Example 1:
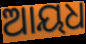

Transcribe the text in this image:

ଆୟଧ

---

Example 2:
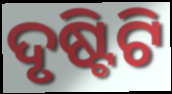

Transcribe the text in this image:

ଦୃଷ୍ଟିଟି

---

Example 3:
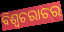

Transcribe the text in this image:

ବିଶ୍ଵଚରାଚର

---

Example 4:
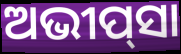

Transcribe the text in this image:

ଅଭୀପ୍‌ସା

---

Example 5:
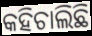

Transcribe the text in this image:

କହିଚାଲିଛି